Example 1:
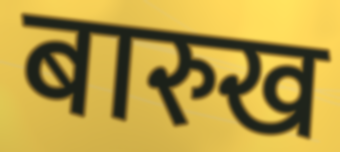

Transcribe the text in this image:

बारुख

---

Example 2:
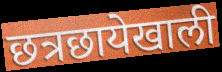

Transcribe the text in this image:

छत्रछायेखाली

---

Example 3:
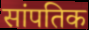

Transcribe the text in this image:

सांपतिक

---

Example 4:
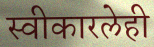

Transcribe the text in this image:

स्वीकारलेही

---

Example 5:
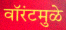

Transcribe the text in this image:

वॉरंटमुळे